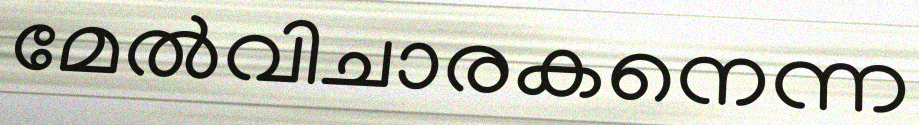
മേൽവിചാരകനെന്ന